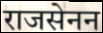
राजसेनन